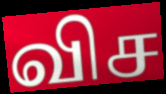
விச